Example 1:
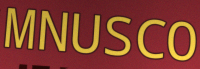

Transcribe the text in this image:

MNUSCO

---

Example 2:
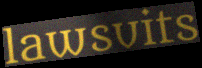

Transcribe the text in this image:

lawsuits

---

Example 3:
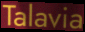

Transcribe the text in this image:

Talavia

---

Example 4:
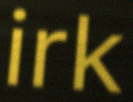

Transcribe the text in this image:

irk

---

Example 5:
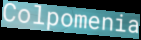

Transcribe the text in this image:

Colpomenia